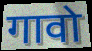
गावो